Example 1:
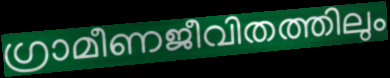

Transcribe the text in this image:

ഗ്രാമീണജീവിതത്തിലും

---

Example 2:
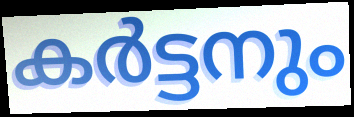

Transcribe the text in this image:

കർട്ടനും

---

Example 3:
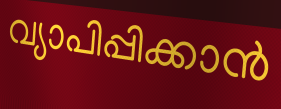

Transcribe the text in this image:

വ്യാപിപ്പിക്കാൻ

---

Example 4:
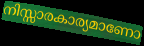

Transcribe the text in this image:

നിസ്സാരകാര്യമാണോ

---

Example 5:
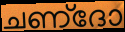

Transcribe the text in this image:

ചണ്ദോ